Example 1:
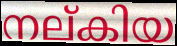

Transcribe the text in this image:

നല്കിയ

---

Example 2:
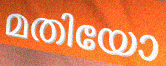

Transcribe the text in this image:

മതിയോ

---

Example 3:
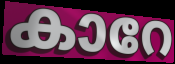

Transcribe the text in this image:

കാറേ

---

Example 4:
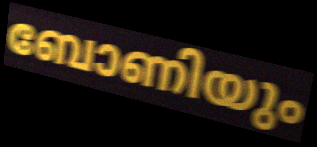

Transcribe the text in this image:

ബോണിയും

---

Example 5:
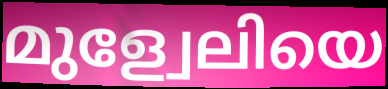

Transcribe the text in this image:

മുള്വേലിയെ